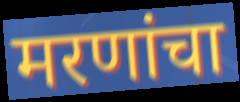
मरणांचा